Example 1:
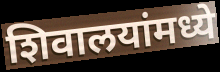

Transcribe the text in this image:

शिवालयांमध्ये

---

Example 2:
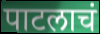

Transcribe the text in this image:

पाटलाचं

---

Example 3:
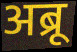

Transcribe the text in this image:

अब्रू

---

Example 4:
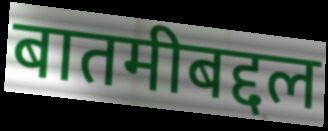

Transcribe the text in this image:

बातमीबद्दल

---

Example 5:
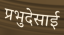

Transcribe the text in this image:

प्रभुदेसाई